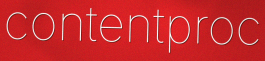
contentproc